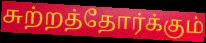
சுற்றத்தோர்க்கும்